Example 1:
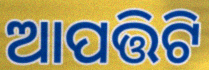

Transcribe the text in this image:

ଆପତ୍ତିଟି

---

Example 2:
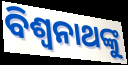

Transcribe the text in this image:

ବିଶ୍ବନାଥଙ୍କୁ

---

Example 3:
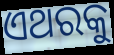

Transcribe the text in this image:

ଏଥରକୁ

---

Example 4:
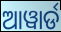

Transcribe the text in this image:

ଆୱାର୍ଡ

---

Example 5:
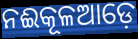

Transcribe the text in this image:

ନଈକୂଳଆଡ଼େ